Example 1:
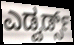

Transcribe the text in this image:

ಎಡ್ವರ್ಡ್ಸ್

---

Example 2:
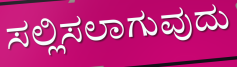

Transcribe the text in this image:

ಸಲ್ಲಿಸಲಾಗುವುದು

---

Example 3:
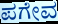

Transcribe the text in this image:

ಪಗೇವ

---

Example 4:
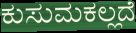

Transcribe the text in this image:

ಕುಸುಮಕಲ್ಲದೆ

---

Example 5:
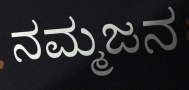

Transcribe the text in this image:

ನಮ್ಮಜನ